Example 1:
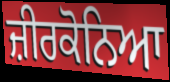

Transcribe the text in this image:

ਜ਼ੀਰਕੋਨਿਆ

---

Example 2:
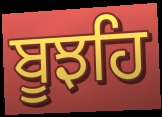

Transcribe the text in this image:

ਬੂਝਹਿ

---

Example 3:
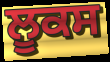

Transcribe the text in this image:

ਲੂਕਸ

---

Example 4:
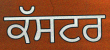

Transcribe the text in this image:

ਕੱਸਟਰ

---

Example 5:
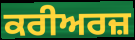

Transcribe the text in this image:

ਕਰੀਅਰਜ਼